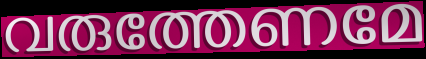
വരുത്തേണമേ